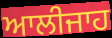
ਆਲੀਜਾਹ